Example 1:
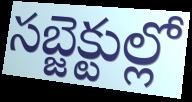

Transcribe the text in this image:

సబ్జెక్టుల్లో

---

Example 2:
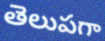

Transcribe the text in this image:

తెలుపగా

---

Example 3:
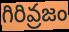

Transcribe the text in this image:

గిరివ్రజం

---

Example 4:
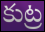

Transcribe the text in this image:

కుట్ర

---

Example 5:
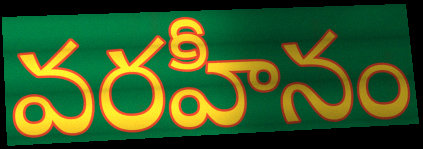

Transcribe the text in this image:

వరహీనం